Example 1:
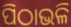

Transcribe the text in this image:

ପିଠାଭଳି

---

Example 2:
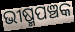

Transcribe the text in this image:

ଭୀଷ୍ମପଞ୍ଚକ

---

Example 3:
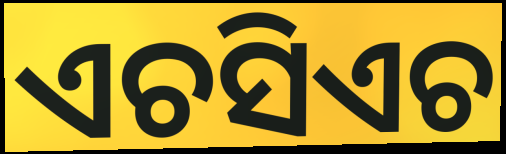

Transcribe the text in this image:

ଏଚସିଏଚ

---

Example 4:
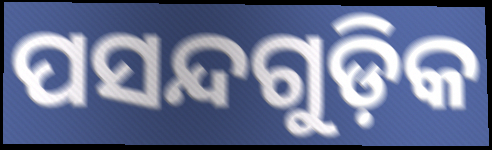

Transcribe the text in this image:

ପସନ୍ଦଗୁଡ଼ିକ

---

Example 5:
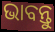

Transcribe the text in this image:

ଭାବନ୍ତୁ